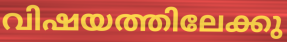
വിഷയത്തിലേക്കു